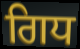
ਗਿਧ